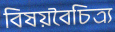
বিষয়বৈচিত্র্য